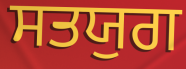
ਸਤਯੁਗ